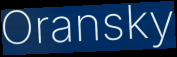
Oransky